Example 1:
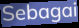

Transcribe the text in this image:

Sebagai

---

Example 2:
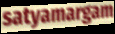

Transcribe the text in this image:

satyamargam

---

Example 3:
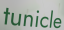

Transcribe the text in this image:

tunicle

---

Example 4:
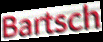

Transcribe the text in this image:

Bartsch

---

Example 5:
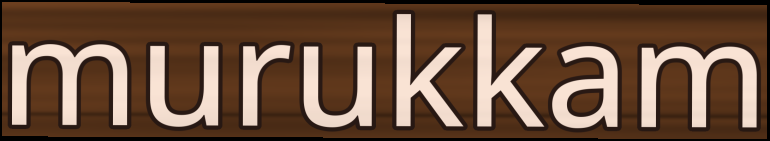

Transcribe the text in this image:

murukkam